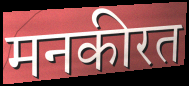
मनकीरत